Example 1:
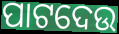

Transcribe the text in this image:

ପାଟଦେଉ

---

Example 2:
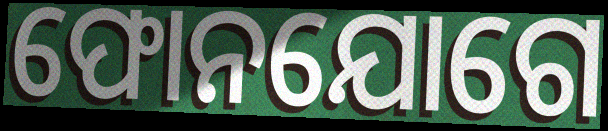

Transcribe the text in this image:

ଫୋନଯୋଗେ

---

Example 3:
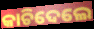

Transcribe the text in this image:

କାଚିଦେଲେ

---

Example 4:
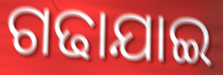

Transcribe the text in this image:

ଗଢାଯାଇ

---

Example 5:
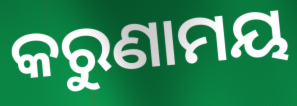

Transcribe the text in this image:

କରୁଣାମୟ